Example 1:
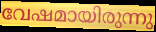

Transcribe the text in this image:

വേഷമായിരുന്നു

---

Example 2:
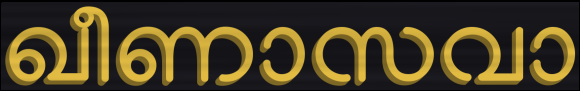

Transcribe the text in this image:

ഖീണാസവാ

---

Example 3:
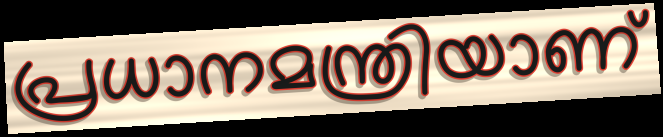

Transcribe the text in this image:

പ്രധാനമന്ത്രിയാണ്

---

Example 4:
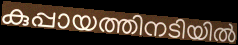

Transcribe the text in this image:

കുപ്പായത്തിനടിയിൽ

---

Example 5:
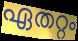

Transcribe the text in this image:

ഏതറ്റം